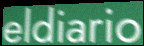
eldiario